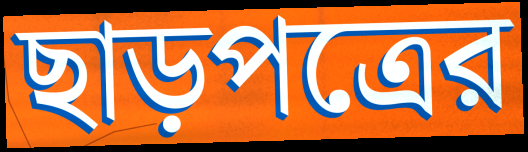
ছাড়পত্রের